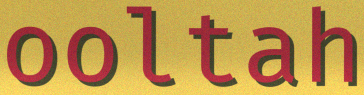
ooltah